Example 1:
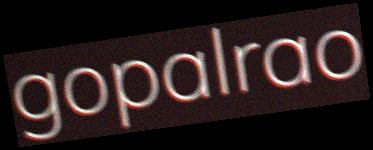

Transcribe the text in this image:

gopalrao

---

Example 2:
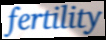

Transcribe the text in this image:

fertility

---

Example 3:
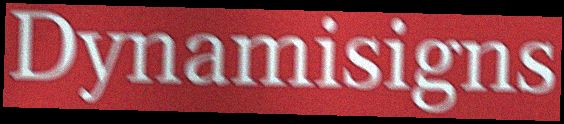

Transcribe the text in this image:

Dynamisigns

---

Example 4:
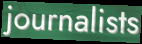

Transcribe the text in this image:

journalists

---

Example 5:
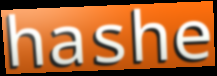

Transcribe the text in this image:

hashe